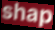
shap